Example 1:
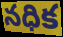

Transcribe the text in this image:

నధిక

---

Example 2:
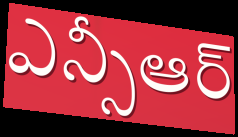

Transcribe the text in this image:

ఎన్సీఆర్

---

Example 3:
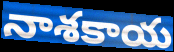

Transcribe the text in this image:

నాశకాయ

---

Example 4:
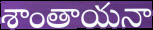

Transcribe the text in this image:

శాంతాయనా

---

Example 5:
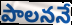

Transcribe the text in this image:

పాలననే